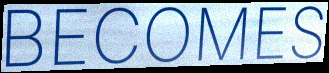
BECOMES